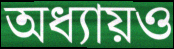
অধ্যায়ও